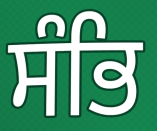
ਸੰਭਿ